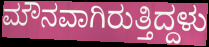
ಮೌನವಾಗಿರುತ್ತಿದ್ದಳು